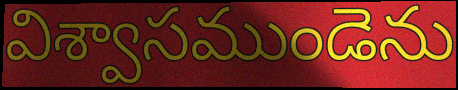
విశ్వాసముండెను